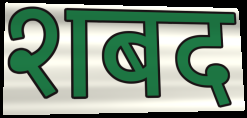
शबद